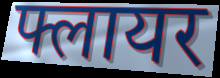
फ्लायर